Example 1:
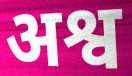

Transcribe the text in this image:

अश्व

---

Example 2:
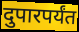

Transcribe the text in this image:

दुपारपर्यंत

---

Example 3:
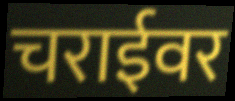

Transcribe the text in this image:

चराईवर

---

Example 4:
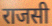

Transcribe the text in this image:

राजसी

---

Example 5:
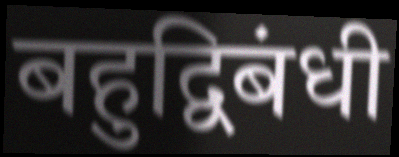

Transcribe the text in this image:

बहुद्विबंधी